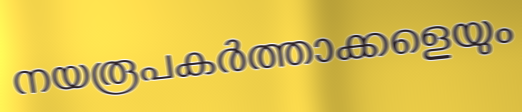
നയരൂപകർത്താക്കളെയും